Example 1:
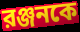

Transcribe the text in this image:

রঞ্জনকে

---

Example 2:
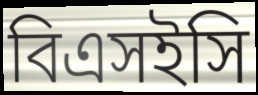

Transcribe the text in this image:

বিএসইসি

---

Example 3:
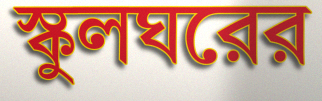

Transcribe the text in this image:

স্কুলঘরের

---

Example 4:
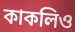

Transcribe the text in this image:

কাকলিও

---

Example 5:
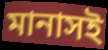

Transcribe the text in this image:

মানাসই